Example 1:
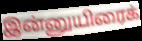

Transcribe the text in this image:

இன்னுயிரைக்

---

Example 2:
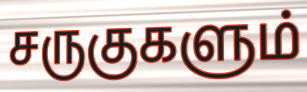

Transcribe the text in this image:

சருகுகளும்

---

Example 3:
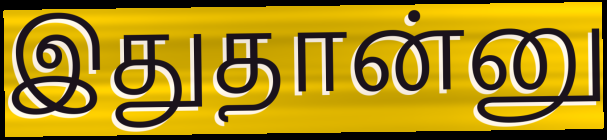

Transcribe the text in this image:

இதுதான்னு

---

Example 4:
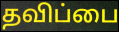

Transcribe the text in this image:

தவிப்பை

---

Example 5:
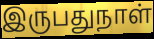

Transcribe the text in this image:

இருபதுநாள்